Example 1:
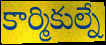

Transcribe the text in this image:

కార్మికుల్నే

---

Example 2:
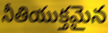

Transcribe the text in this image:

నీతియుక్తమైన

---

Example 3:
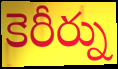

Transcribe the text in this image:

కెరీర్ను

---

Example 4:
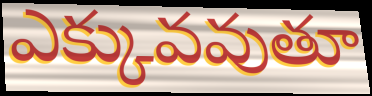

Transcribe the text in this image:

ఎక్కువవుతూ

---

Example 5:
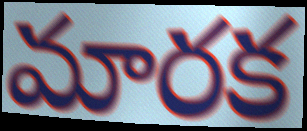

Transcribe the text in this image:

మారక